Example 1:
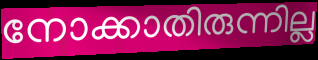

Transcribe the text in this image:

നോക്കാതിരുന്നില്ല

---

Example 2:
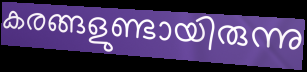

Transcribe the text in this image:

കരങ്ങളുണ്ടായിരുന്നു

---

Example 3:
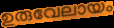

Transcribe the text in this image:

ഉരുവേലായം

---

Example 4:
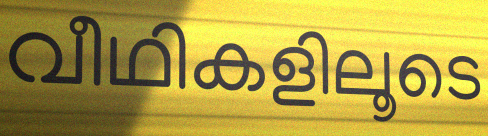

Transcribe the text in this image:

വീഥികളിലൂടെ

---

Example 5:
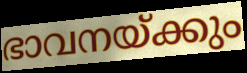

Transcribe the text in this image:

ഭാവനയ്ക്കും